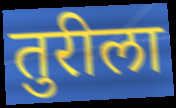
तुरीला